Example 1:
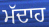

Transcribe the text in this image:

ਮੱਦਾਹ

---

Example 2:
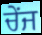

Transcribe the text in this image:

ਚੇਂਜ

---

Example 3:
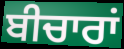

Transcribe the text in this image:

ਬੀਚਾਰਾਂ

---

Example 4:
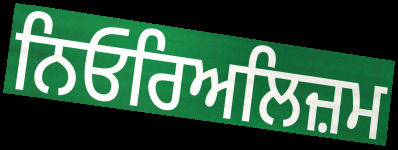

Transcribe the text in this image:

ਨਿਓਰਿਅਲਿਜ਼ਮ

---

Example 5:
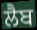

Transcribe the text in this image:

ਲੈਬ